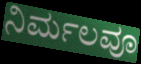
ನಿರ್ಮಲವೂ